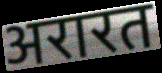
अरारत